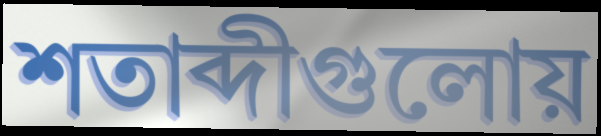
শতাব্দীগুলোয়